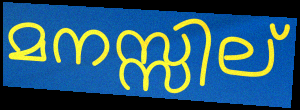
മനസ്സില്